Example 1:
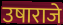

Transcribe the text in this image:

उषाराजे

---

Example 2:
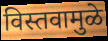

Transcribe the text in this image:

विस्तवामुळे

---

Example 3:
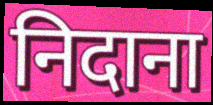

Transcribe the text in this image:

निदाना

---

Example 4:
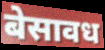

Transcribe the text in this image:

बेसावध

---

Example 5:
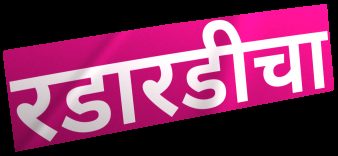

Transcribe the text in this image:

रडारडीचा